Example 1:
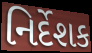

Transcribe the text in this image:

નિર્દેશક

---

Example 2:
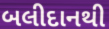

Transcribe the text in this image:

બલીદાનથી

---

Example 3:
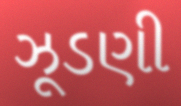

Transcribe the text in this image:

ઝૂડણી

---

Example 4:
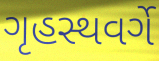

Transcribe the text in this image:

ગૃહસ્થવર્ગે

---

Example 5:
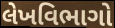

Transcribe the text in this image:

લેખવિભાગો